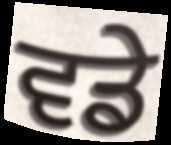
ਵਡੇ